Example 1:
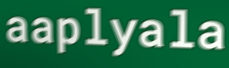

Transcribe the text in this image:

aaplyala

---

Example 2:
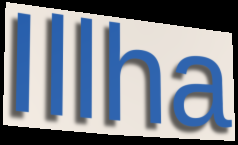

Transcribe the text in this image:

Illha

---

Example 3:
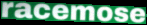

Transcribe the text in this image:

racemose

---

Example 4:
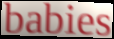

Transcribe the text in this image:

babies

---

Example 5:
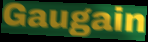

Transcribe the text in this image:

Gaugain